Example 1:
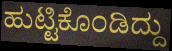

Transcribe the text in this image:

ಹುಟ್ಟಿಕೊಂಡಿದ್ದು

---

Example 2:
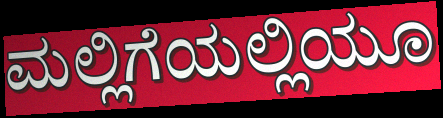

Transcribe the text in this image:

ಮಲ್ಲಿಗೆಯಲ್ಲಿಯೂ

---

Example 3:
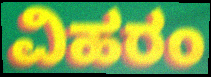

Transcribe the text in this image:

ವಿಹರಂ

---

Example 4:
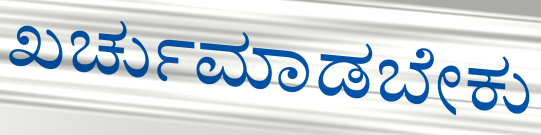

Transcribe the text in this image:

ಖರ್ಚುಮಾಡಬೇಕು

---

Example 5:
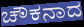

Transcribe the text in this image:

ಚೌಕನಾದ